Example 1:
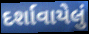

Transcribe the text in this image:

દર્શાવાયેલું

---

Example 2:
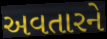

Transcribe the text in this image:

અવતારને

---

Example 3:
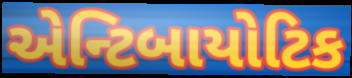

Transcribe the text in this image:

એન્ટિબાયોટિક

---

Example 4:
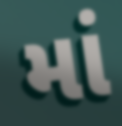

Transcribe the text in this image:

માં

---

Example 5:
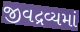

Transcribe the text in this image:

જીવદ્રવ્યમાં